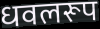
धवलरूप